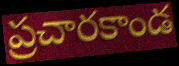
ప్రచారకాండ